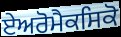
ਏਅਰੋਮੈਕਸਿਕੋ